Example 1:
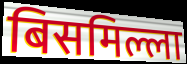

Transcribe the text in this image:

बिसमिल्ला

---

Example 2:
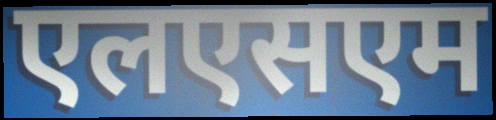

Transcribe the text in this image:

एलएसएम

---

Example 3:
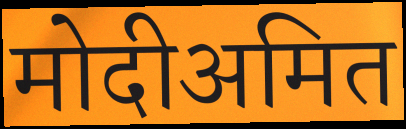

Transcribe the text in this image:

मोदीअमित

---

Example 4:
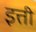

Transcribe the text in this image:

इत्ती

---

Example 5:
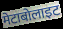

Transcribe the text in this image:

मेटाबोलाइट